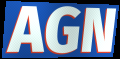
AGN